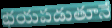
భయపడుతూనే